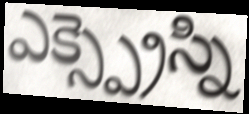
ఎక్స్ప్రెస్ని